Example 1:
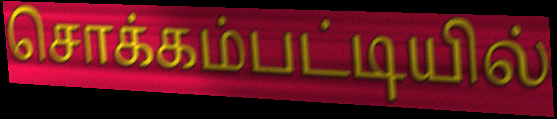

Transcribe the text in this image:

சொக்கம்பட்டியில்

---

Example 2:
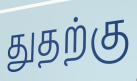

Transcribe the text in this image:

துதற்கு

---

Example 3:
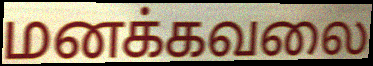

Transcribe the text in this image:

மனக்கவலை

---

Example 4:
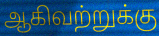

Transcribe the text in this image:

ஆகிவற்றுக்கு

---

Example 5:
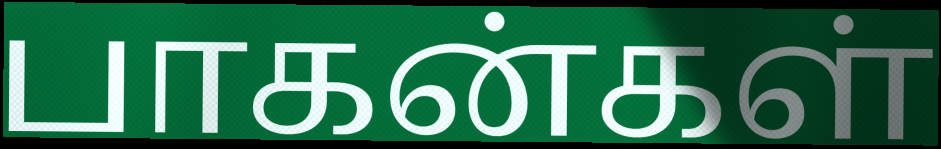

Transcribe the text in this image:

பாகன்கள்